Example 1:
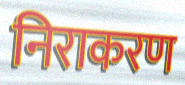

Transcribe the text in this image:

निराकरण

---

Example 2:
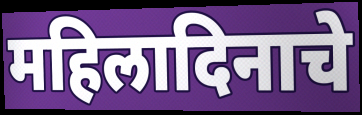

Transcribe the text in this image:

महिलादिनाचे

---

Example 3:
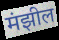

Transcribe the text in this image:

मंझील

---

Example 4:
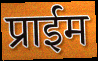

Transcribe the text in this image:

प्राईम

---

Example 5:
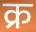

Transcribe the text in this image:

क्र